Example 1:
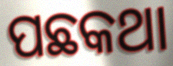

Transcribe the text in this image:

ପଛକଥା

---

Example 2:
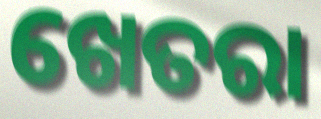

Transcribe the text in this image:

ଖେତରା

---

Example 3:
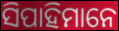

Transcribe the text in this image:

ସିପାହିମାନେ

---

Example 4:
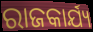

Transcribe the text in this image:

ରାଜକାର୍ଯ୍ୟ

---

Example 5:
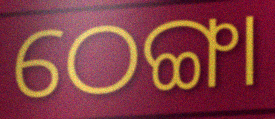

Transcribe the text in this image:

ଠେଙ୍ଗା